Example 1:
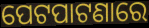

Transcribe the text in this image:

ପେଟପାଟଣାରେ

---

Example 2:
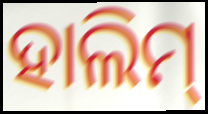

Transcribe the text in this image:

ହାଲିମ୍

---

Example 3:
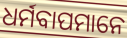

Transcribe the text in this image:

ଧର୍ମବାପମାନେ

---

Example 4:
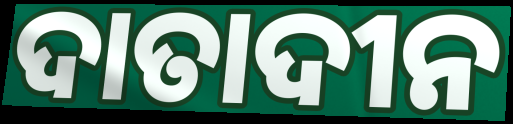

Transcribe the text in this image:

ଦାତାଦୀନ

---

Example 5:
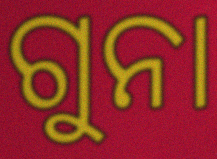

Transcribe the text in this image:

ଗୁନା